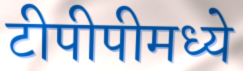
टीपीपीमध्ये